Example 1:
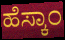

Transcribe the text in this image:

ಹೆಸ್ಕಾಂ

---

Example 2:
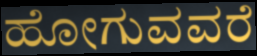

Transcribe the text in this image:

ಹೋಗುವವರೆ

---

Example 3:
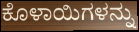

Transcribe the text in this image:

ಕೊಳಾಯಿಗಳನ್ನು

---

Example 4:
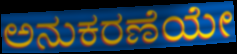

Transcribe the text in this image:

ಅನುಕರಣೆಯೇ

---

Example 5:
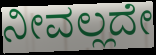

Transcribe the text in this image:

ನೀವಲ್ಲದೇ